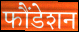
फौंडेशन